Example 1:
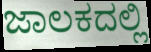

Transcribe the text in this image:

ಜಾಲಕದಲ್ಲಿ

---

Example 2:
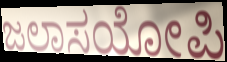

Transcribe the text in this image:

ಜಲಾಸಯೋಪಿ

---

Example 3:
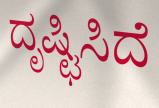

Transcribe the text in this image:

ದೃಷ್ಟಿಸಿದೆ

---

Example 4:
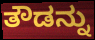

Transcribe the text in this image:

ತೌಡನ್ನು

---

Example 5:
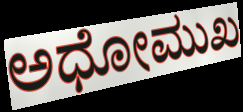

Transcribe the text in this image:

ಅಧೋಮುಖ